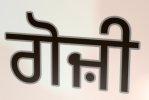
ਗੋਜ਼ੀ